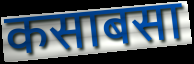
कसाबसा